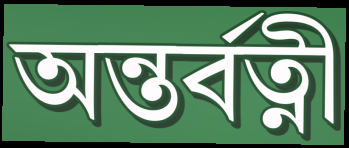
অন্তর্বত্নী